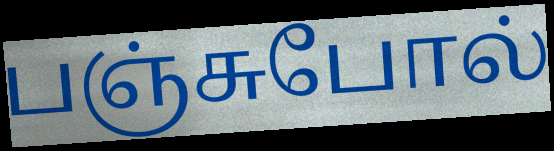
பஞ்சுபோல்